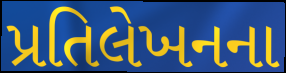
પ્રતિલેખનના